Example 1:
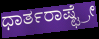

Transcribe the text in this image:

ಧಾರ್ತರಾಷ್ಟ್ರೇ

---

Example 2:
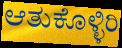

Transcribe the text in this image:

ಆತುಕೊಳ್ಳಿರಿ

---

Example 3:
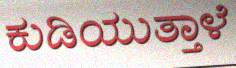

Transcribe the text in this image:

ಕುಡಿಯುತ್ತಾಳೆ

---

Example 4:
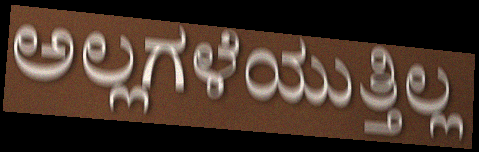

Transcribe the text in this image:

ಅಲ್ಲಗಳೆಯುತ್ತಿಲ್ಲ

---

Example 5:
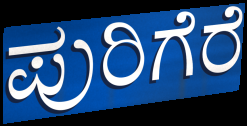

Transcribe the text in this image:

ಪುರಿಗೆರೆ